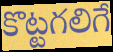
కొట్టగలిగే